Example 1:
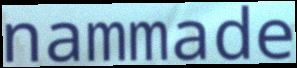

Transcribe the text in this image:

nammade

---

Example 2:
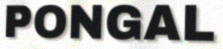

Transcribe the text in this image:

PONGAL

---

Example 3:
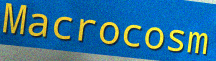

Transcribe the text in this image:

Macrocosm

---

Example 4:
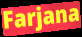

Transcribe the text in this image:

Farjana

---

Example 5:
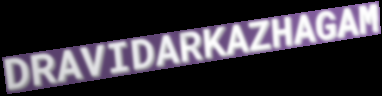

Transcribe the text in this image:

DRAVIDARKAZHAGAM